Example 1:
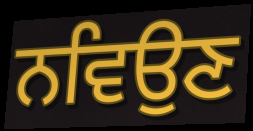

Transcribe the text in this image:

ਨਵਿਉਣ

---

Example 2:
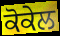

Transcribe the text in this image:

ਕੋਕੇਲ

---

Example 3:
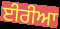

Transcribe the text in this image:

ਈਰੀਆ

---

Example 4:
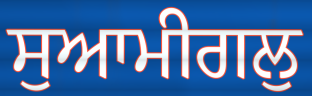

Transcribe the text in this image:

ਸੁਆਮੀਗਲੁ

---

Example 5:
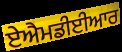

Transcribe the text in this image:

ਏਐਮਡੀਈਆਰ